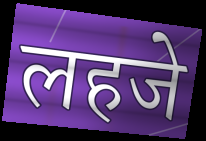
लहजे